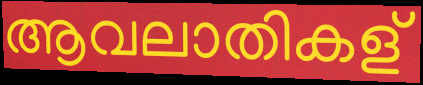
ആവലാതികള്